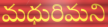
మధురిమని